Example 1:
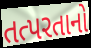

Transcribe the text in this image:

તત્પરતાનો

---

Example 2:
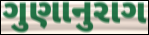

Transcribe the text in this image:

ગુણાનુરાગ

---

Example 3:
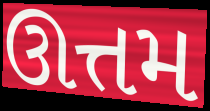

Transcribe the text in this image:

ઊત્તમ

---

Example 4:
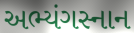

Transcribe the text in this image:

અભ્યંગસ્નાન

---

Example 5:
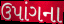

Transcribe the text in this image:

ઉપાંગના